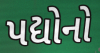
પદ્યોનો